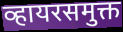
व्हायरसमुक्त